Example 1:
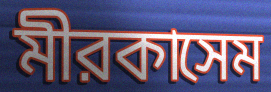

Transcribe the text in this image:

মীরকাসেম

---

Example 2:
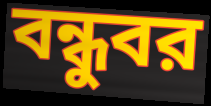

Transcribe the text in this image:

বন্ধুবর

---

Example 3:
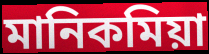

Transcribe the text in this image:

মানিকমিয়া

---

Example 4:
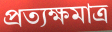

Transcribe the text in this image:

প্রত্যক্ষমাত্র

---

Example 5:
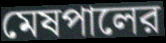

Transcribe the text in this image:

মেষপালের